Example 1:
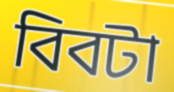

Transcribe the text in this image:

বিবটা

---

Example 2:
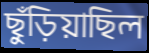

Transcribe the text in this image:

ছুঁড়িয়াছিল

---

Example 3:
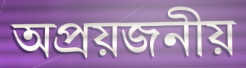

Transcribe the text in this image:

অপ্রয়জনীয়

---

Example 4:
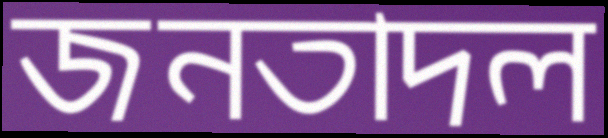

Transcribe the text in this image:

জনতাদল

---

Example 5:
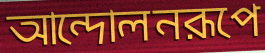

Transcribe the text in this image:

আন্দোলনরূপে